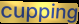
cupping